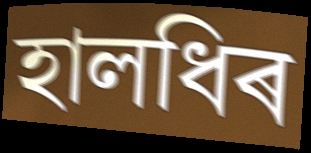
হালধিৰ